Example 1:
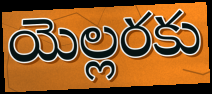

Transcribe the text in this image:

యెల్లరకు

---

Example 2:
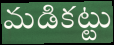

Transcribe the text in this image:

మడికట్టు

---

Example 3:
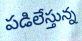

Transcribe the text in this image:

పడిలేస్తున్న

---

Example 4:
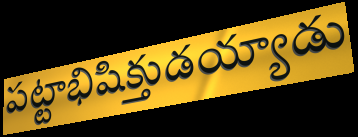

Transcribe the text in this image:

పట్టాభిషిక్తుడయ్యాడు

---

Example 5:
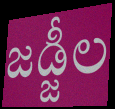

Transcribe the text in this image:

జడ్జీల